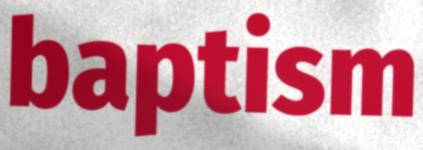
baptism